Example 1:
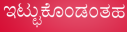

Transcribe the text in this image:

ಇಟ್ಟುಕೊಂಡಂತಹ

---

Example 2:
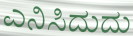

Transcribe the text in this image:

ಎನಿಸಿದುದು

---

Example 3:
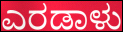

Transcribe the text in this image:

ಎರಡಾಳು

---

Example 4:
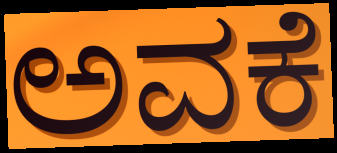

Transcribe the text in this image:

ಅವಕೆ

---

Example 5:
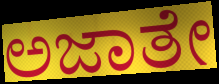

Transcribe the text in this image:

ಅಜಾತೇ